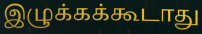
இழுக்கக்கூடாது